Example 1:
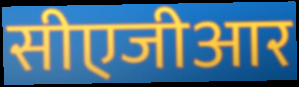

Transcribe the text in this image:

सीएजीआर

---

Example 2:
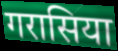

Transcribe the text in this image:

गरासिया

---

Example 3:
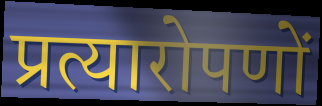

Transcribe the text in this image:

प्रत्यारोपणों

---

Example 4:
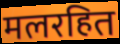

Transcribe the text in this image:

मलरहित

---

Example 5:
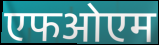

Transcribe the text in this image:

एफओएम